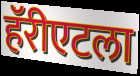
हॅरीएटला